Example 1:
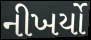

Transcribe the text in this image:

નીખર્યો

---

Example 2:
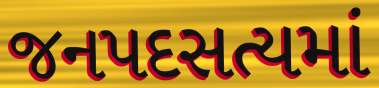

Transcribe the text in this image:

જનપદસત્યમાં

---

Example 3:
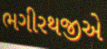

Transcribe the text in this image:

ભગીરથજીએ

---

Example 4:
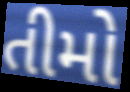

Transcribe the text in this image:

તીમો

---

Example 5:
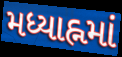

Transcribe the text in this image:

મધ્યાહ્નમાં